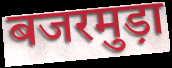
बजरमुड़ा